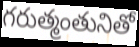
గరుత్మంతునితో